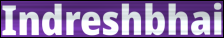
Indreshbhai